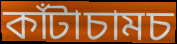
কাঁটাচামচ